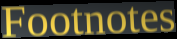
Footnotes